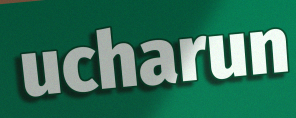
ucharun